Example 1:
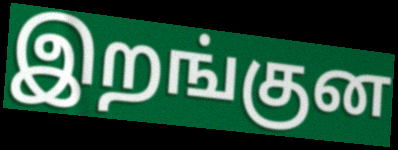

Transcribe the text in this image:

இறங்குன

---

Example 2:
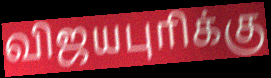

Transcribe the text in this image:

விஜயபுரிக்கு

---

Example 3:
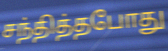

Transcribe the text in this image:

சந்தித்தபோது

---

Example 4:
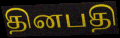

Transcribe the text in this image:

தினபதி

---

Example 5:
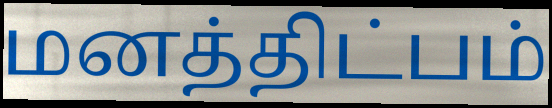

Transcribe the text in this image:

மனத்திட்பம்